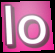
Io